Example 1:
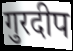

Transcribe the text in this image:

गुरदीप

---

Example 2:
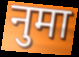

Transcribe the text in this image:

नुमा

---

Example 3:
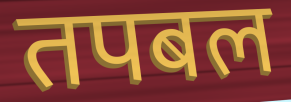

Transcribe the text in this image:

तपबल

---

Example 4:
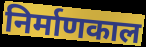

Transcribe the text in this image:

निर्माणकाल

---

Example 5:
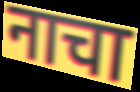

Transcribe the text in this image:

नाचा